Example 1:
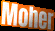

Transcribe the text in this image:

Moher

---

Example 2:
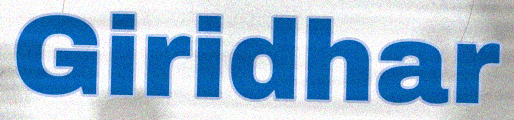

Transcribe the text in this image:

Giridhar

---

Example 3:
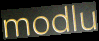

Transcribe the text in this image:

modlu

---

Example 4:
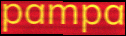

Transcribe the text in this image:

pampa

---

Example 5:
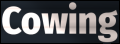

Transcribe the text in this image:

Cowing